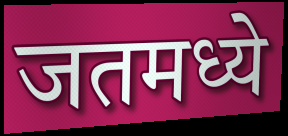
जतमध्ये